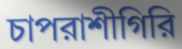
চাপরাশীগিরি